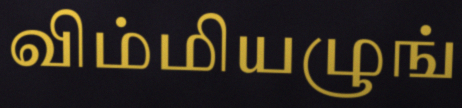
விம்மியழுங்